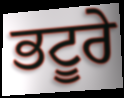
ਭਟੂਰੇ